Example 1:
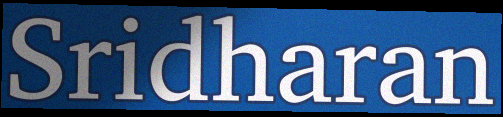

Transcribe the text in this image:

Sridharan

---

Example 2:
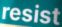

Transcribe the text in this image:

resist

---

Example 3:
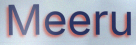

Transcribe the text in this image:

Meeru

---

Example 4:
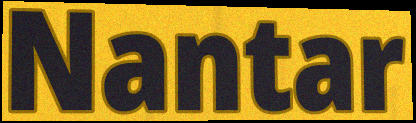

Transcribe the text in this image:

Nantar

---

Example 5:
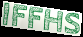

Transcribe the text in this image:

IFFHS